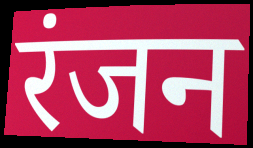
रंजन